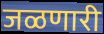
जळणारी